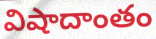
విషాదాంతం